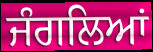
ਜੰਗਲਿਆਂ